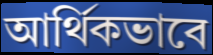
আর্থিকভাবে